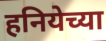
हनियेच्या